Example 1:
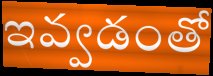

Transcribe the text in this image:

ఇవ్వడంతో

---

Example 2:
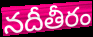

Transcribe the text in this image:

నదీతీరం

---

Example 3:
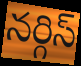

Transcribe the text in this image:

నర్గిస్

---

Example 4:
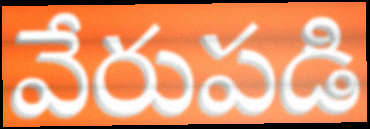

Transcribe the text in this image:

వేరుపడి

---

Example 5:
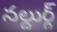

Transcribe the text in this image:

నల్దుర్గ్